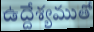
ఉద్దేశ్యముతో